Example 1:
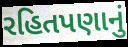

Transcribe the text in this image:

રહિતપણાનું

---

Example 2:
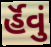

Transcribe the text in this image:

ર્હૅવું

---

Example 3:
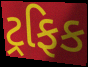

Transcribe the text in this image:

ટ્રફિક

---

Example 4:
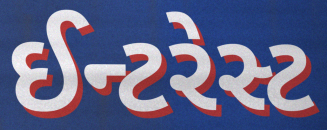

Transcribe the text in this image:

ઈન્ટરેસ્ટ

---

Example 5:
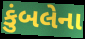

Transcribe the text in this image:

કુંબલેના